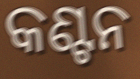
କଣ୍ଟନ